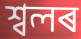
শ্বলৰ